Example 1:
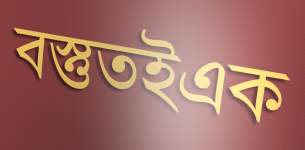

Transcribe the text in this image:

বস্তুতইএক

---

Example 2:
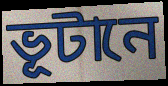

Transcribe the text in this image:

ভূটানে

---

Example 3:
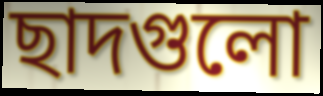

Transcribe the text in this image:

ছাদগুলো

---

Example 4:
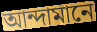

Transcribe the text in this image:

আন্দামানে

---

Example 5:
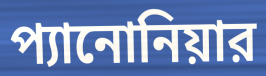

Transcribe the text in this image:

প্যানোনিয়ার